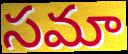
సమా